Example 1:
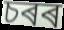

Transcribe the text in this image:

চৰৰ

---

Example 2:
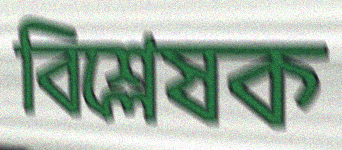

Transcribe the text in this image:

বিশ্লেষক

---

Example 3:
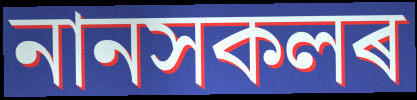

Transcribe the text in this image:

নানসকলৰ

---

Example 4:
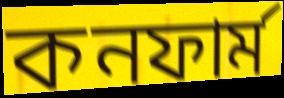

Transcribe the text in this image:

কনফাৰ্ম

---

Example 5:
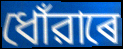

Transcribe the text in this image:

ধোঁৱাৰে